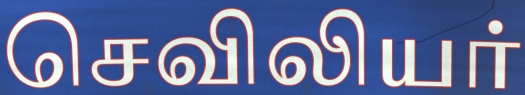
செவிலியர்